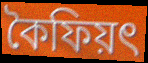
কৈফিয়ৎ